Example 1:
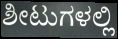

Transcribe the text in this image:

ಶೀಟುಗಳಲ್ಲಿ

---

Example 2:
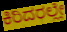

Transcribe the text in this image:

ಕಿರಿದರಲ್ಲೇ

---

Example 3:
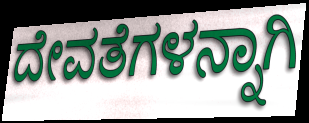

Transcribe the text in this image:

ದೇವತೆಗಳನ್ನಾಗಿ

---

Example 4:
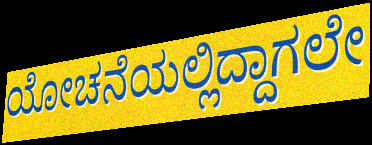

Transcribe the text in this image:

ಯೋಚನೆಯಲ್ಲಿದ್ದಾಗಲೇ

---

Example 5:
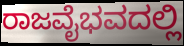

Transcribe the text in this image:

ರಾಜವೈಭವದಲ್ಲಿ